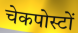
चेकपोस्टों